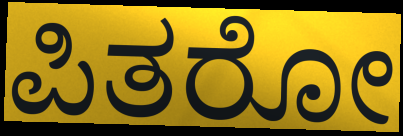
ಪಿತರೋ